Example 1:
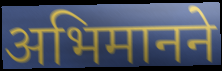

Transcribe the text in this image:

अभिमानने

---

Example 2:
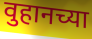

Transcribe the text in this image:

वुहानच्या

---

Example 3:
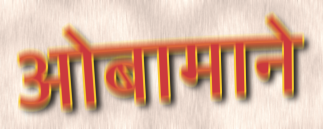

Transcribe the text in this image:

ओबामाने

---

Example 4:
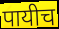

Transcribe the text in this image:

पायीच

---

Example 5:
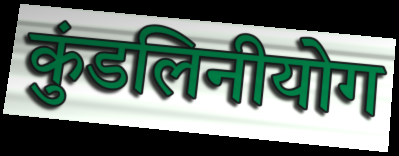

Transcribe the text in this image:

कुंडलिनीयोग